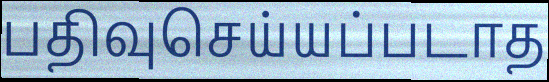
பதிவுசெய்யப்படாத